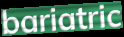
bariatric